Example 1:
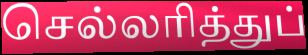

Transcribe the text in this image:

செல்லரித்துப்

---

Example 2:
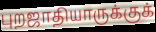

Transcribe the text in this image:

புறஜாதியாருக்குக்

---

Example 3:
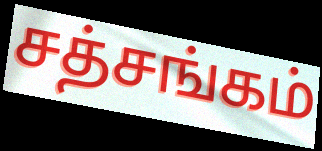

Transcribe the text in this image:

சத்சங்கம்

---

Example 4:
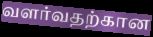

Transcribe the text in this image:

வளர்வதற்கான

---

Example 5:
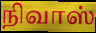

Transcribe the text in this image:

நிவாஸ்